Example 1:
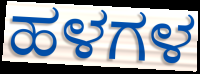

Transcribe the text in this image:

ಹಳಗಳ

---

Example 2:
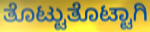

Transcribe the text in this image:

ತೊಟ್ಟುತೊಟ್ಟಾಗಿ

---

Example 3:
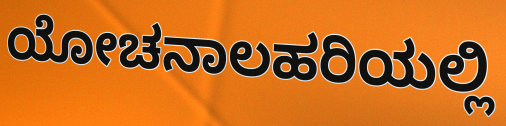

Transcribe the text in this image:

ಯೋಚನಾಲಹರಿಯಲ್ಲಿ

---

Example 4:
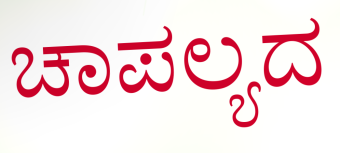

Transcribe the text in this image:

ಚಾಪಲ್ಯದ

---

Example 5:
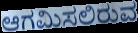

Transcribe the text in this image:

ಆಗಮಿಸಲಿರುವ